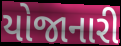
યોજાનારી